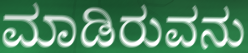
ಮಾಡಿರುವನು